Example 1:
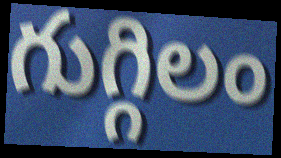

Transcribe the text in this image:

గుగ్గిలం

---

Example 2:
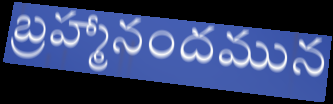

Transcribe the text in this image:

బ్రహ్మానందమున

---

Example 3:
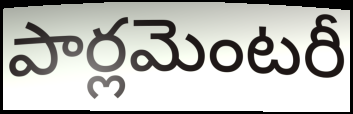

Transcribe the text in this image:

పార్లమెంటరీ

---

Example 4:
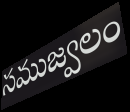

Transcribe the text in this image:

సముజ్వలం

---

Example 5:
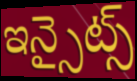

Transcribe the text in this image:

ఇన్సైట్స్